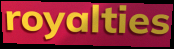
royalties